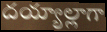
దయ్యాల్లాగా